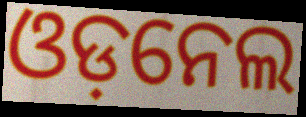
ଓଡ଼ନେଲ